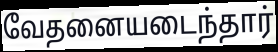
வேதனையடைந்தார்